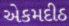
એકમદીઠ